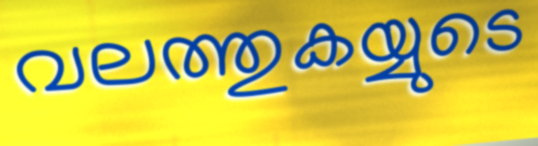
വലത്തുകയ്യുടെ